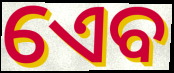
ଏେବ